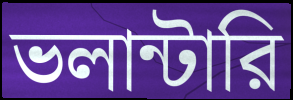
ভলান্টারি